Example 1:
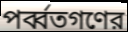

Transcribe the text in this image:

পর্ব্বতগণের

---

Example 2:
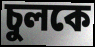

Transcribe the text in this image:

চুলকে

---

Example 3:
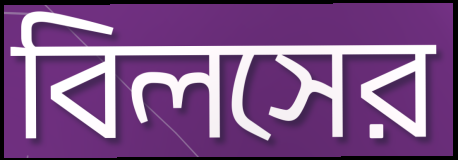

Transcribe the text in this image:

বিলসের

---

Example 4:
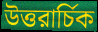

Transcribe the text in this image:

উত্তরার্চিক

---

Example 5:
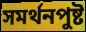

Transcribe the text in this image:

সমর্থনপুষ্ট